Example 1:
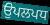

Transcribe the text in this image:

ਉਪਲਪਧ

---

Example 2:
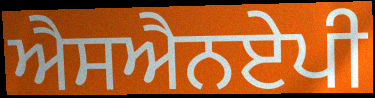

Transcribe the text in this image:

ਐਸਐਨਏਪੀ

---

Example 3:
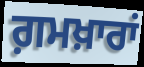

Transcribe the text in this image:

ਗ਼ਮਖ਼ਾਰਾਂ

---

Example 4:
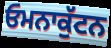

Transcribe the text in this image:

ਓਮਨਾਕੁੱਟਨ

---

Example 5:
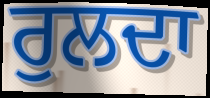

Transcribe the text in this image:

ਰੁਲਦਾ